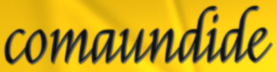
comaundide